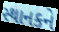
સ્થાનકને